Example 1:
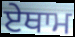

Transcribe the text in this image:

ਏਥਾਮ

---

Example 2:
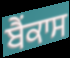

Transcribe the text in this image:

ਬੈਂਕਾਸ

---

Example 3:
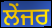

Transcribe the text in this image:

ਲੇਂਜਰ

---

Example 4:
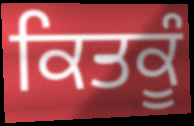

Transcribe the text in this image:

ਕਿਤਕੂੰ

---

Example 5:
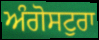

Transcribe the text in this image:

ਅੰਗੋਸਟੁਰਾ